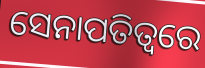
ସେନାପତିତ୍ୱରେ